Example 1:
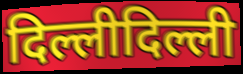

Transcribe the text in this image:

दिल्लीदिल्ली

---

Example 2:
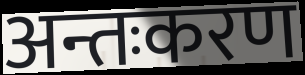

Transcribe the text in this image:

अन्तःकरण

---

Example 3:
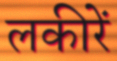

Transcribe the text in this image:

लकीरें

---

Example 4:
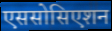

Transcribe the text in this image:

एससोसिएशन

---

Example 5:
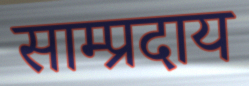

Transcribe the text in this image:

साम्प्रदाय